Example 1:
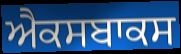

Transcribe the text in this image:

ਐਕਸਬਾਕਸ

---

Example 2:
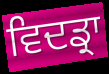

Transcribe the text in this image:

ਵਿਦਡ੍ਰਾ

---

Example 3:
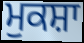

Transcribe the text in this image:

ਮੁਕਸ਼ਾ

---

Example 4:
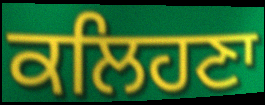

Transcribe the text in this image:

ਕਲਿਹਣਾ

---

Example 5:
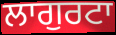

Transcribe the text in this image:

ਲਾਗੁਰਟਾ